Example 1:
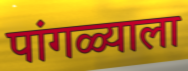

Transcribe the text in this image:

पांगळ्याला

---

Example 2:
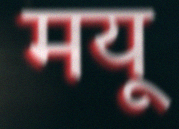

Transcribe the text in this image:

मयू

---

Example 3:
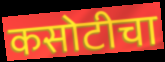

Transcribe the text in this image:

कसोटीचा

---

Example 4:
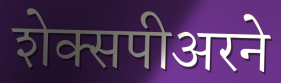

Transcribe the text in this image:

शेक्सपीअरने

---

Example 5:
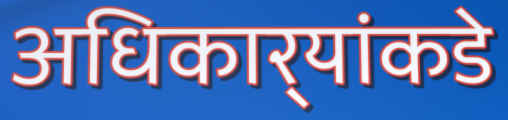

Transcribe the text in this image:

अधिकार्‍यांकडे